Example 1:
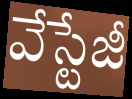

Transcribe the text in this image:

వేస్టేజీ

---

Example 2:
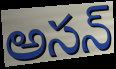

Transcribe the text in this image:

అసన్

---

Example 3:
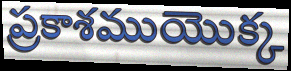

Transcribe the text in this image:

ప్రకాశముయొక్క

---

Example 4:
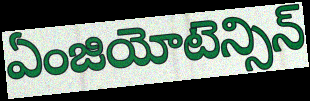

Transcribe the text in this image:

ఏంజియోటెన్సిన్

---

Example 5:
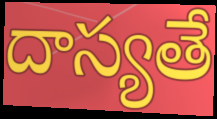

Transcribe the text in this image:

దాస్యతే